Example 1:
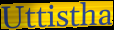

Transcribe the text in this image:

Uttistha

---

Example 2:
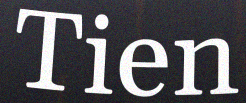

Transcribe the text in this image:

Tien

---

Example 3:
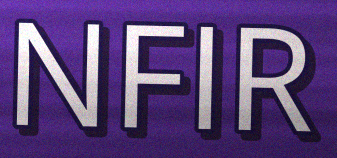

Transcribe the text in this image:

NFIR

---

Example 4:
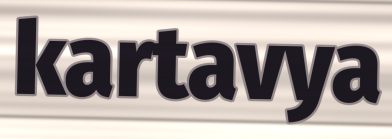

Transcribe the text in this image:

kartavya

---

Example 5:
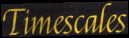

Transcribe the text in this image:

Timescales